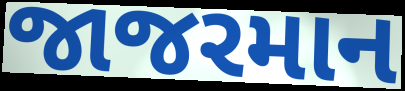
જાજરમાન